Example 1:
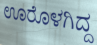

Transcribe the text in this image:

ಊರೊಳಗಿದ್ದ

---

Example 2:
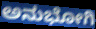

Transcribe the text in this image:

ಅನುಭೋಗಿ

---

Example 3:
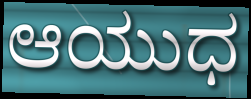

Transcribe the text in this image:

ಆಯುಧ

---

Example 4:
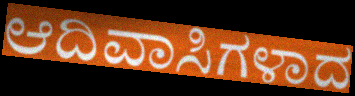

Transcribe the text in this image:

ಆದಿವಾಸಿಗಳಾದ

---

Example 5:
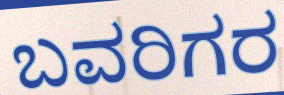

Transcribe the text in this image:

ಬವರಿಗರ